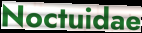
Noctuidae